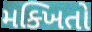
મક્ખિતો